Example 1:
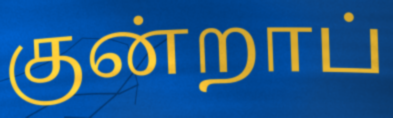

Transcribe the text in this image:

குன்றாப்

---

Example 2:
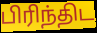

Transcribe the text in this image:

பிரிந்திட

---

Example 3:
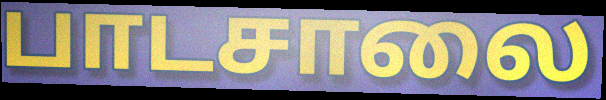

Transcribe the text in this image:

பாடசாலை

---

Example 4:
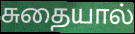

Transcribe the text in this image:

சுதையால்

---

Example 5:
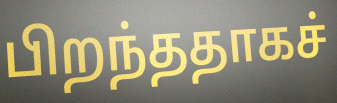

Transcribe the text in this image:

பிறந்ததாகச்